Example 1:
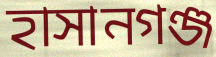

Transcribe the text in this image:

হাসানগঞ্জ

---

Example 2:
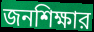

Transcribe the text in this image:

জনশিক্ষার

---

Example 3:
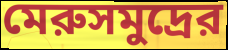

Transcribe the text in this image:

মেরুসমুদ্রের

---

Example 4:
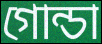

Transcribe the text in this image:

গোন্ডা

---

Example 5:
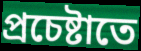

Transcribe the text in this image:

প্রচেষ্টাতে